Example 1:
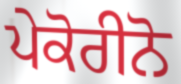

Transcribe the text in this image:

ਪੇਕੋਰੀਨੋ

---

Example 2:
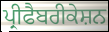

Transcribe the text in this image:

ਪ੍ਰੀਫੈਬਰੀਕੇਸ਼ਨ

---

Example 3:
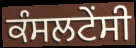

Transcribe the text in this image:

ਕੰਸਲਟੇਂਸੀ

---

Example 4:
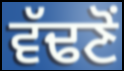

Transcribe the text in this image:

ਵੱਢਣੋਂ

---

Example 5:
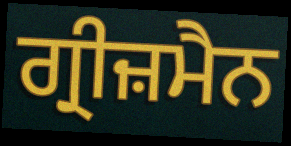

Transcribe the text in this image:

ਗ੍ਰੀਜ਼ਮੈਨ